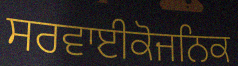
ਸਰਵਾਈਕੋਜਨਿਕ